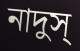
নাদুস্